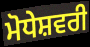
ਮੋਧੇਸ਼ਵਰੀ